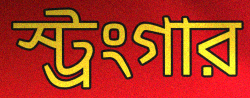
স্ট্রংগার